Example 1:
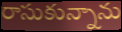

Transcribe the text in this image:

రాసుకున్నాను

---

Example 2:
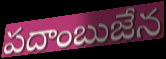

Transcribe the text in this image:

పదాంబుజేన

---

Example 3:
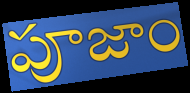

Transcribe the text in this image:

పూజాం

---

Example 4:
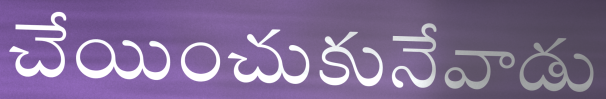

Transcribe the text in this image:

చేయించుకునేవాడు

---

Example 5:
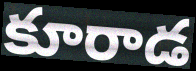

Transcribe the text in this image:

కూరాడ